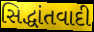
સિદ્ધાંતવાદી